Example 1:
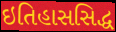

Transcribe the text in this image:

ઇતિહાસસિદ્ધ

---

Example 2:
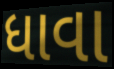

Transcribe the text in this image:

ધાવા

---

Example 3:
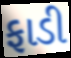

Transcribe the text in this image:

ફાડી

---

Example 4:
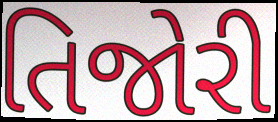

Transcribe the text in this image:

તિજોરી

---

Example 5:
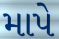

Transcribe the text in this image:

માપે